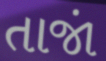
તાજાં